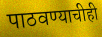
पाठवण्याचीही